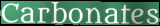
Carbonates